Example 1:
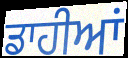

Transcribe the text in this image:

ਡਾਹੀਆਂ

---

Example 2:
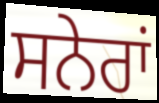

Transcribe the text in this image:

ਸਨੇਰਾਂ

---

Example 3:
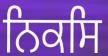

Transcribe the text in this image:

ਨਿਕਸਿ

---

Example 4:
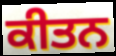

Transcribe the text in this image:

ਕੀਤਨ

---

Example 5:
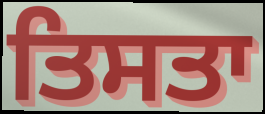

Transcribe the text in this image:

ਤਿਸਤਾ